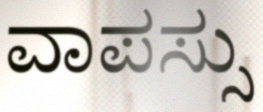
ವಾಪಸ್ಸು